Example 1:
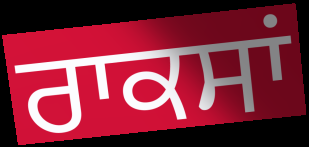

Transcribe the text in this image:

ਰਾਕਸਾਂ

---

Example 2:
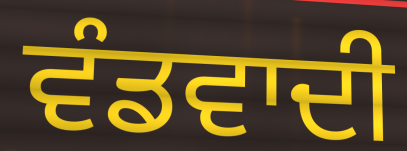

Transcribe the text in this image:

ਵੰਡਵਾਦੀ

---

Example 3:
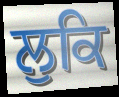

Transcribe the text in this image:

ਲੁਕਿ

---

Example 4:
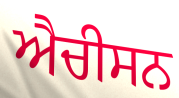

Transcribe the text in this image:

ਐਚੀਸਨ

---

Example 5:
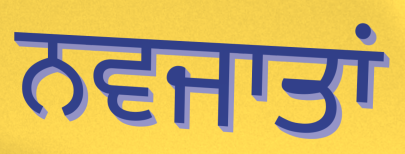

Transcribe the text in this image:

ਨਵਜਾਤਾਂ